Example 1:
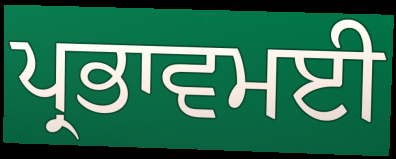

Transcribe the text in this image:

ਪ੍ਰਭਾਵਮਈ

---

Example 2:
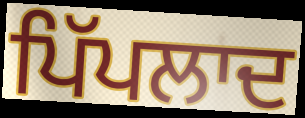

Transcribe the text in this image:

ਪਿੱਪਲਾਦ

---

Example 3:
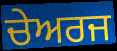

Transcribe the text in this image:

ਚੇਅਰਜ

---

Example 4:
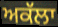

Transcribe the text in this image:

ਅਕੱਲਾ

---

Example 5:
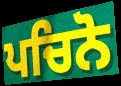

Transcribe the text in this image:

ਪਚਿਨੋ